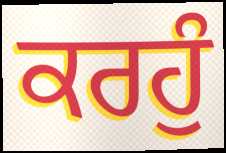
ਕਰਹੁੰ